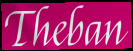
Theban